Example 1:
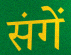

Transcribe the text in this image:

संगें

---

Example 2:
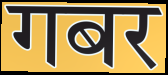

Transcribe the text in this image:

गबर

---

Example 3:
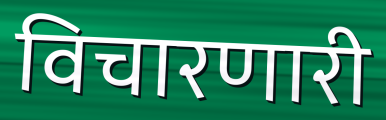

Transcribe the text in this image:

विचारणारी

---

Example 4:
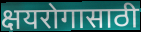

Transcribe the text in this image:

क्षयरोगासाठी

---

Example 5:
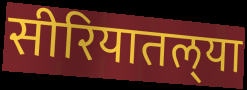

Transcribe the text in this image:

सीरियातल्या